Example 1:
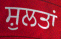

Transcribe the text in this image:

ਸ਼ੁਲਤਾਂ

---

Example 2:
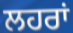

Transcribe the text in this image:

ਲਹਰਾਂ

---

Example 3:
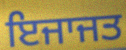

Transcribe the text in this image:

ਇਜਾਜਤ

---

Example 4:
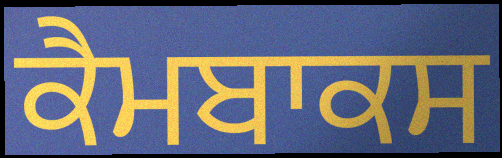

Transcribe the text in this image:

ਕੈਮਬਾਕਸ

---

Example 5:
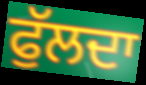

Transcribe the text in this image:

ਫੁੱਲਦਾ